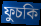
ফুচকি